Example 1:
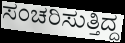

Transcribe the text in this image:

ಸಂಚರಿಸುತ್ತಿದ್ದ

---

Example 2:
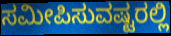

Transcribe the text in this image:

ಸಮೀಪಿಸುವಷ್ಟರಲ್ಲಿ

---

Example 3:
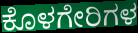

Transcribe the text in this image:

ಕೊಳಗೇರಿಗಳ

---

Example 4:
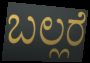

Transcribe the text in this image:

ಬಲ್ಲರೆ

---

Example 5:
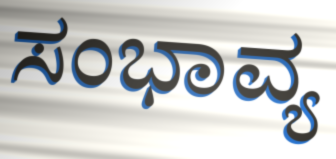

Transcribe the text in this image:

ಸಂಭಾವ್ಯ